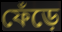
ফেঁড়ে